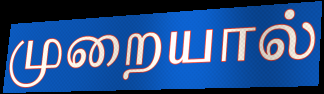
முறையால்